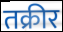
तक्रीर